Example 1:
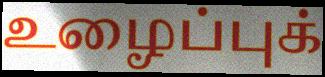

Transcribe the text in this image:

உழைப்புக்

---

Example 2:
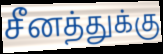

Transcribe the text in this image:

சீனத்துக்கு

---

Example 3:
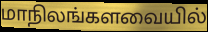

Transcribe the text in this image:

மாநிலங்களவையில்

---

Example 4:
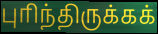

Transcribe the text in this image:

புரிந்திருக்கக்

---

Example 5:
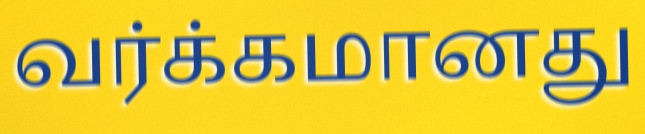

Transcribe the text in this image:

வர்க்கமானது